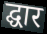
द्घार